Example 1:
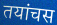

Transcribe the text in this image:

तयांचस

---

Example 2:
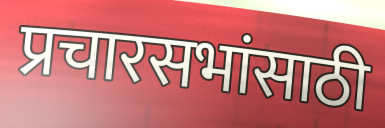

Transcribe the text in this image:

प्रचारसभांसाठी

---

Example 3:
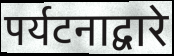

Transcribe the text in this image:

पर्यटनाद्वारे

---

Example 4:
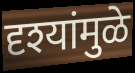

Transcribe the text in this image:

दृश्यांमुळे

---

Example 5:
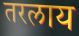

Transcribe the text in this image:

तरलाय